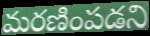
మరణింపడని